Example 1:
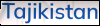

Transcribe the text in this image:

Tajikistan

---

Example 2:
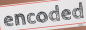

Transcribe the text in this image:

encoded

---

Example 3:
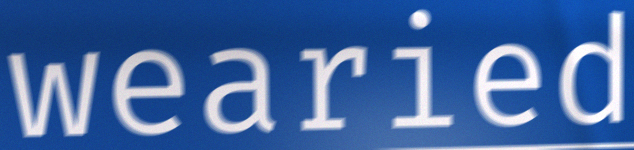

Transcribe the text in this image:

wearied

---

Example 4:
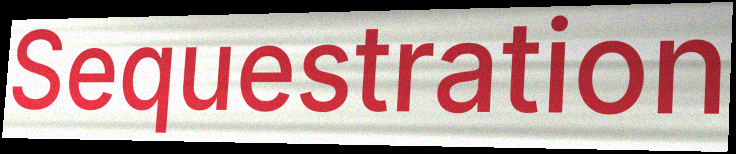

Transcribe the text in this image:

Sequestration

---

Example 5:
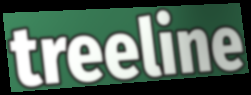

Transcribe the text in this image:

treeline